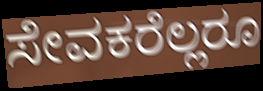
ಸೇವಕರೆಲ್ಲರೂ